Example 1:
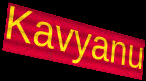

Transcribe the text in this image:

Kavyanu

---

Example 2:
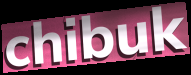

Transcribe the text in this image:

chibuk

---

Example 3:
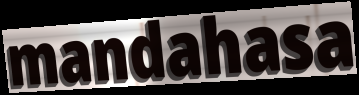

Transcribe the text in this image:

mandahasa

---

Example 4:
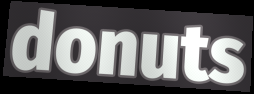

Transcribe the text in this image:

donuts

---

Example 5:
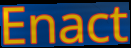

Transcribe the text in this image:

Enact